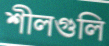
শীলগুলি